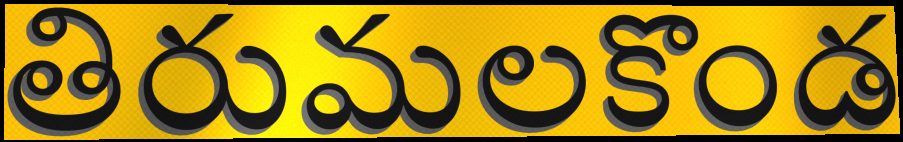
తిరుమలకొండ